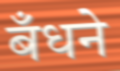
बँधने